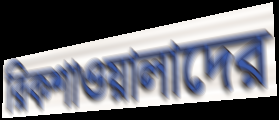
রিকশাওয়ালাদের